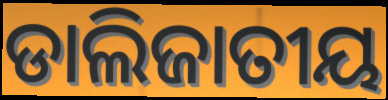
ଡାଲିଜାତୀୟ